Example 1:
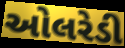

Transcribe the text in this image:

ઓલરેડી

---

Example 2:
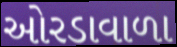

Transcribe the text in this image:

ઓરડાવાળા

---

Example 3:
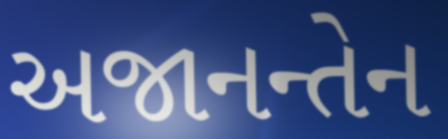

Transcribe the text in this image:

અજાનન્તેન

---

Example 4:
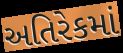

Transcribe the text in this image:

અતિરેકમાં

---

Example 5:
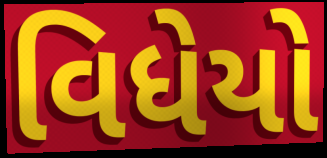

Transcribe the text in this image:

વિધેયો